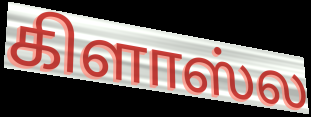
கிளாஸ்ல